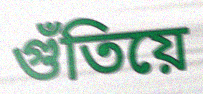
গুঁতিয়ে